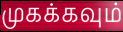
முகக்கவும்